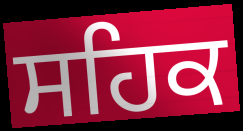
ਸਹਿਕ